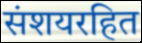
संशयरहित